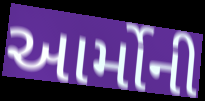
આર્મોની